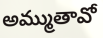
అమ్ముతావో